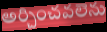
అర్చించవలెను